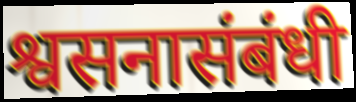
श्वसनासंबंधी